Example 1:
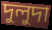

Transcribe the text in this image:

দুলুদা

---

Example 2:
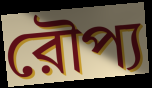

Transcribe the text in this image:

রৌপ্য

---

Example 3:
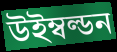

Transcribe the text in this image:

উইম্বল্ডন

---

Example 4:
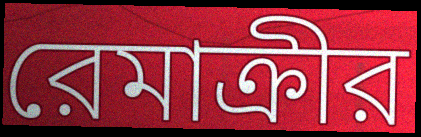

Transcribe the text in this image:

রেমাক্রীর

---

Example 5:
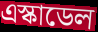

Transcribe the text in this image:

এস্কাডেল